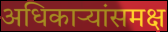
अधिकाऱ्यांसमक्ष